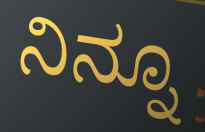
ನಿನ್ನೂ